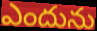
ఎందును